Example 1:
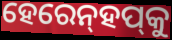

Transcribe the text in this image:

ହେରେନ୍‌ହପ୍‌କୁ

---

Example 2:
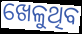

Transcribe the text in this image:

ଖେଳୁଥିବ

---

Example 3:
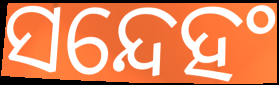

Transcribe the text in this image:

ସନ୍ଦେହଂ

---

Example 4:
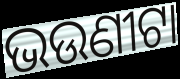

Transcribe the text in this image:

ଭଉଣୀଟା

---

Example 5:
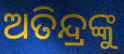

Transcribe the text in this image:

ଅତିନ୍ଦ୍ରଙ୍କୁ